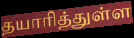
தயாரித்துள்ள